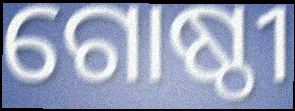
ଗୋଷ୍ଠୀ